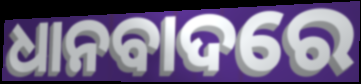
ଧାନବାଦରେ